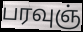
பரவுஞ்